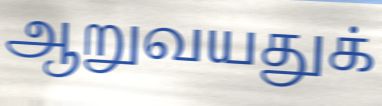
ஆறுவயதுக்